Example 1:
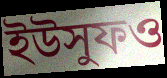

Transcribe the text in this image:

ইউসুফও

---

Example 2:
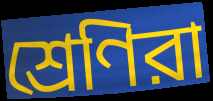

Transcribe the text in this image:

শ্রেণিরা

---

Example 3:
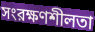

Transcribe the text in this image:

সংরক্ষণশীলতা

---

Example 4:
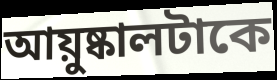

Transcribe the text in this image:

আয়ুষ্কালটাকে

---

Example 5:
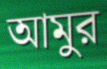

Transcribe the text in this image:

আমুর